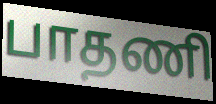
பாதணி